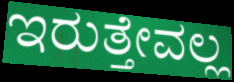
ಇರುತ್ತೇವಲ್ಲ